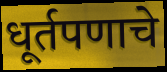
धूर्तपणाचे